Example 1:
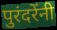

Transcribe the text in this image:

पुरंदरेंनी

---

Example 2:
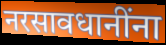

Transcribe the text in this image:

नरसावधानींना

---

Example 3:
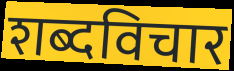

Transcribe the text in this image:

शब्दविचार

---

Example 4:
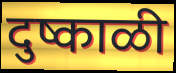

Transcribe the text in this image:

दुष्काळी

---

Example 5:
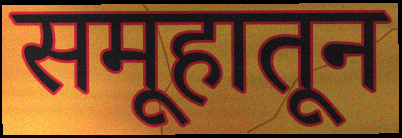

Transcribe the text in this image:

समूहातून